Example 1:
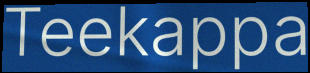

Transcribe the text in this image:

Teekappa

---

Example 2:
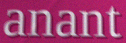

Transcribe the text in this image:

anant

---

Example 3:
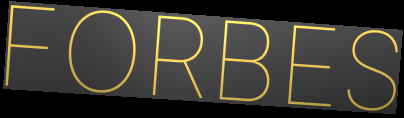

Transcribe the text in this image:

FORBES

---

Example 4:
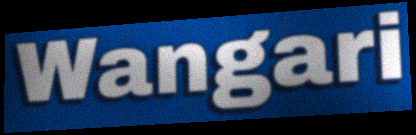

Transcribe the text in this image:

Wangari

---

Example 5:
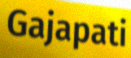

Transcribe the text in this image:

Gajapati